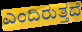
ಎಂದಿರುತ್ತದೆ